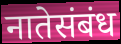
नातेसंबंध